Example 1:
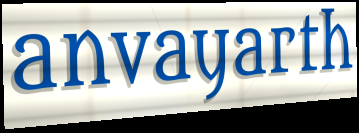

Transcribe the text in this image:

anvayarth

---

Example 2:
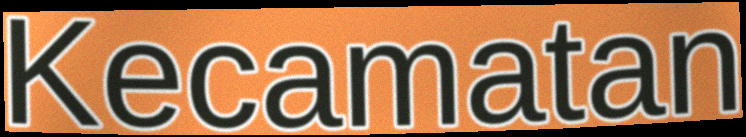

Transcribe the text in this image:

Kecamatan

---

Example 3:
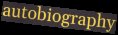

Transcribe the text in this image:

autobiography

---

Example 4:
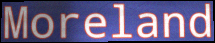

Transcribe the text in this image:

Moreland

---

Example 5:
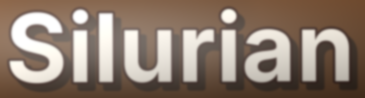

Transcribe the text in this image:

Silurian